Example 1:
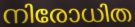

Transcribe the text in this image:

നിരോധിത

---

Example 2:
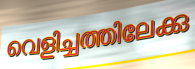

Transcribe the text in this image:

വെളിച്ചത്തിലേക്കു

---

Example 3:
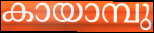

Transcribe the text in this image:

കായാമ്പു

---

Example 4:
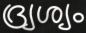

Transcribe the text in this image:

ദ്ര്യശ്യം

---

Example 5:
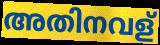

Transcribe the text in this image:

അതിനവള്